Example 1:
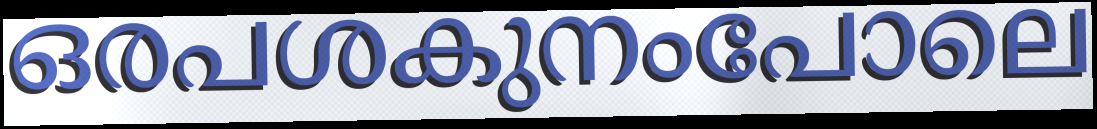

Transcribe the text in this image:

ഒരപശകുനംപോലെ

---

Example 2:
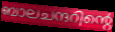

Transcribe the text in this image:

ബാലചന്ദറിന്റെ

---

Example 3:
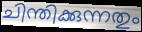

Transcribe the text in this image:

ചിന്തിക്കുന്നതും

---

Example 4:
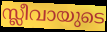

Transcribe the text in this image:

സ്ലീവായുടെ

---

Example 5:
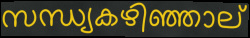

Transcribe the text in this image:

സന്ധ്യകഴിഞ്ഞാല്